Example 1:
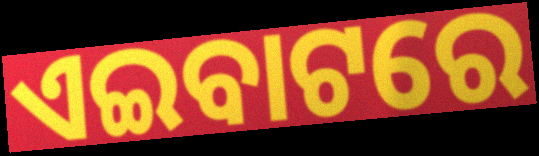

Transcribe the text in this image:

ଏଇବାଟରେ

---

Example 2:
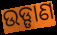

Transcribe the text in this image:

ଉଡ୍ଡାଣ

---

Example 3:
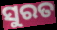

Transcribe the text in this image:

ସୁରତ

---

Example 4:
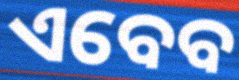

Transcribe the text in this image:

ଏବେବ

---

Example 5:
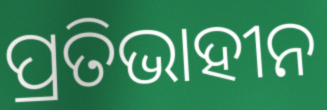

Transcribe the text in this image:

ପ୍ରତିଭାହୀନ